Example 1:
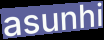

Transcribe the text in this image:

asunhi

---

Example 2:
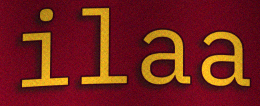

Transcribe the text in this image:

ilaa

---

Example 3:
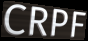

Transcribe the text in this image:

CRPF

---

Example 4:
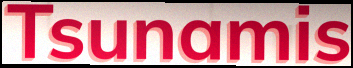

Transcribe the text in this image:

Tsunamis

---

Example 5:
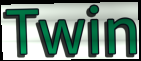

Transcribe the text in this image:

Twin